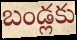
బండ్లకు